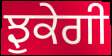
ਝੁਕੇਗੀ